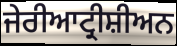
ਜੇਰੀਆਟ੍ਰੀਸ਼ੀਅਨ